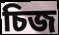
চিজ